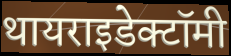
थायराइडेक्टॉमी